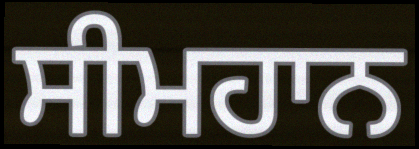
ਸੀਮਹਾਨ